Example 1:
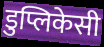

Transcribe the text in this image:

डुप्लिकेसी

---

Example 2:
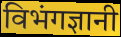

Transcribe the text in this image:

विभंगज्ञानी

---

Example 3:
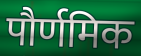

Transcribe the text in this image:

पौर्णमिक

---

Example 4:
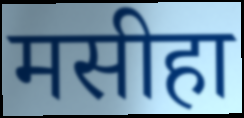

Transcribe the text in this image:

मसीहा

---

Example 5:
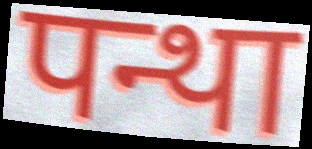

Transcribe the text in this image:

पन्‍था